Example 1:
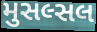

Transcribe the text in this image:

મુસલ્સલ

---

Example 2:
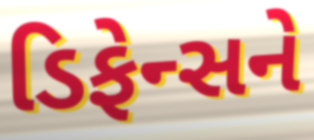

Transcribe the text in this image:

ડિફેન્સને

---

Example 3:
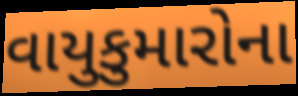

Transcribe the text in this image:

વાયુકુમારોના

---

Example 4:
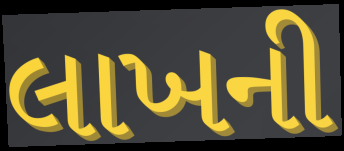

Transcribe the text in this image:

લાખની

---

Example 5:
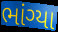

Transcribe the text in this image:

ભાંગ્યા